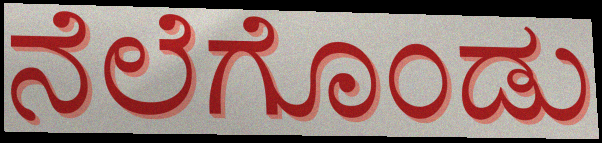
ನೆಲೆಗೊಂಡು